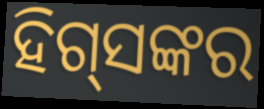
ହିଗ୍‌ସଙ୍କର